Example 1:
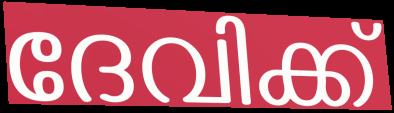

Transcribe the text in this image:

ദേവിക്ക്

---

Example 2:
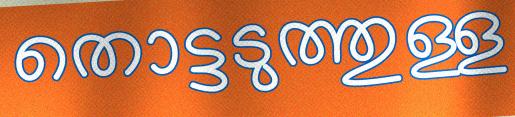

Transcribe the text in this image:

തൊട്ടടുത്തുള്ള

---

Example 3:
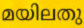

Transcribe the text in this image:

മയിലതു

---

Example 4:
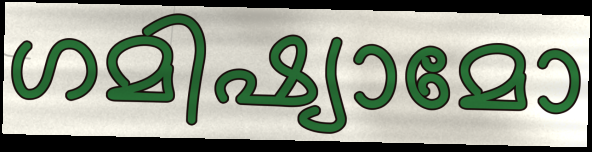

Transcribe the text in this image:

ഗമിഷ്യാമോ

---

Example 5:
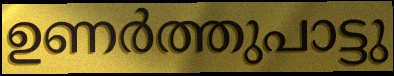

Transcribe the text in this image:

ഉണർത്തുപാട്ടു